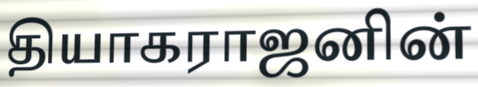
தியாகராஜனின்